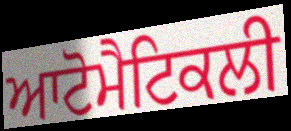
ਆਟੋਮੈਟਿਕਲੀ